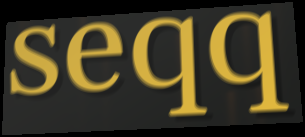
seqq